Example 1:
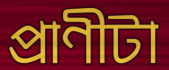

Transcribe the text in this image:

প্রাণীটা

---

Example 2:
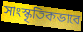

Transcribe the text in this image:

সাংস্কৃতিকভাবে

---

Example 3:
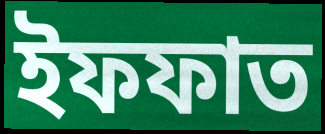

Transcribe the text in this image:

ইফফাত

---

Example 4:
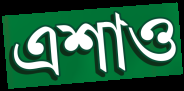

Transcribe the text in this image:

এশাও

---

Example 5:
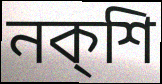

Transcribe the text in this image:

নক্‌শি